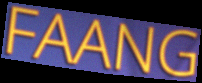
FAANG